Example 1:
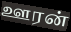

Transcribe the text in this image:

ஊரன்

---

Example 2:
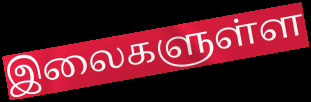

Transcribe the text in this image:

இலைகளுள்ள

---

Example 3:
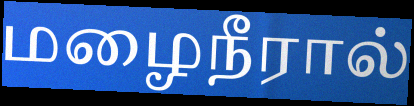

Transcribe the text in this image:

மழைநீரால்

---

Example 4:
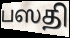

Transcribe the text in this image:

பஸதி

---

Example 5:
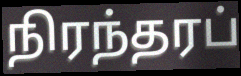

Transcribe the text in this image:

நிரந்தரப்